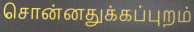
சொன்னதுக்கப்புறம்